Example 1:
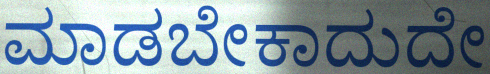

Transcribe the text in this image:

ಮಾಡಬೇಕಾದುದೇ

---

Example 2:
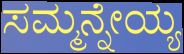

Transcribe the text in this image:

ಸಮ್ಮನ್ನೇಯ್ಯ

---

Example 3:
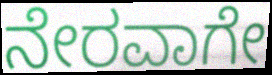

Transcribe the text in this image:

ನೇರವಾಗೇ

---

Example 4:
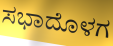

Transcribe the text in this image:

ಸಭಾದೊಳಗ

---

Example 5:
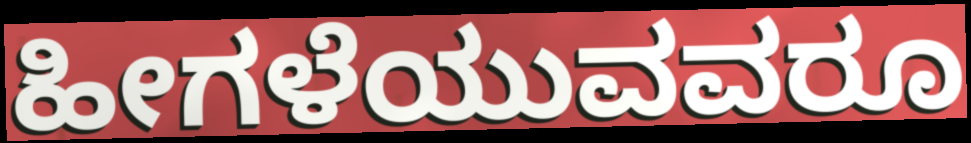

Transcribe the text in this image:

ಹೀಗಳೆಯುವವರೂ